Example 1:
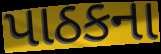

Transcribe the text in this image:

પાઠકના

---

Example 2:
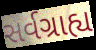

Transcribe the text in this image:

સર્વગ્રાહ્ય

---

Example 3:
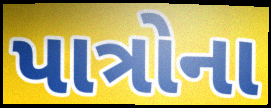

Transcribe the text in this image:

પાત્રોના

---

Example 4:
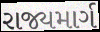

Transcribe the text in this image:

રાજ્યમાર્ગ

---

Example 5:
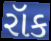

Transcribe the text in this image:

રૉક